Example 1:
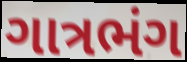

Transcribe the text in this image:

ગાત્રભંગ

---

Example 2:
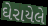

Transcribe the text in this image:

ઘેરાયેલે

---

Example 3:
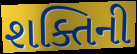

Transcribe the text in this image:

શક્તિની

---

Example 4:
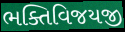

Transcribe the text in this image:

ભક્તિવિજયજી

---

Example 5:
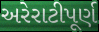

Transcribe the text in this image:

અરેરાટીપૂર્ણ